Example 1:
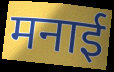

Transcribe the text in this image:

मनाई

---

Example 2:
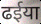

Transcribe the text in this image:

ढईया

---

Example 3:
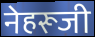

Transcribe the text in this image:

नेहरूजी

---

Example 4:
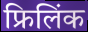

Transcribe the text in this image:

फ्रिलिंक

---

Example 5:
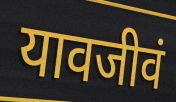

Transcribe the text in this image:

यावजीवं